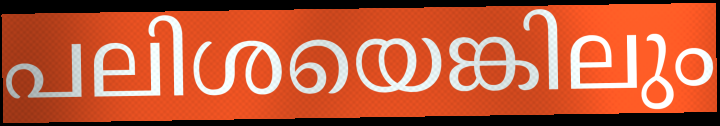
പലിശയെങ്കിലും